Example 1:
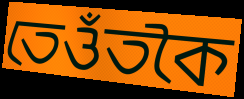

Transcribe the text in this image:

তেওঁতকৈ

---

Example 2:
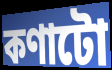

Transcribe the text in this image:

কণাটো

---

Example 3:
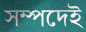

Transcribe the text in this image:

সম্পদেই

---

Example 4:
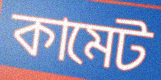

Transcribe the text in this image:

কামেট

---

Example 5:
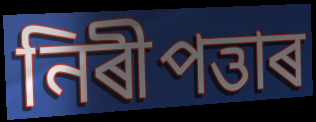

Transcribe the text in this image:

নিৰীপত্তাৰ